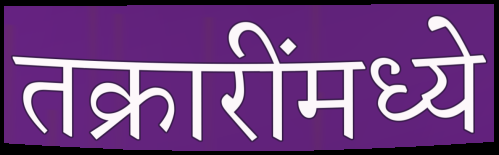
तक्रारींमध्ये